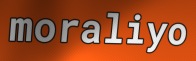
moraliyo